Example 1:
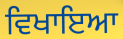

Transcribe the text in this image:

ਵਿਖਾਇਆ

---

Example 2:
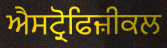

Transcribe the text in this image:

ਐਸਟ੍ਰੋਫਿਜ਼ੀਕਲ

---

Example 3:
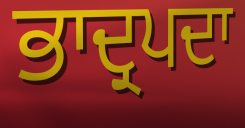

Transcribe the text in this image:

ਭਾਦ੍ਰਪਦਾ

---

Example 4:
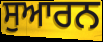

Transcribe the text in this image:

ਸੁਆਰਨ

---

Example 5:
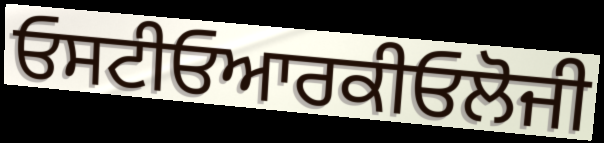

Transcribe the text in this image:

ਓਸਟੀਓਆਰਕੀਓਲੋਜੀ